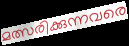
മത്സരിക്കുന്നവരെ